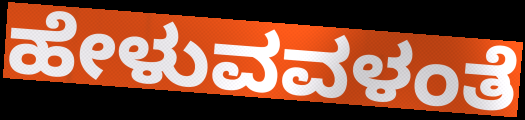
ಹೇಳುವವಳಂತೆ